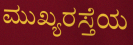
ಮುಖ್ಯರಸ್ತೆಯ